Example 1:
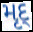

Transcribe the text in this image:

મૃદ્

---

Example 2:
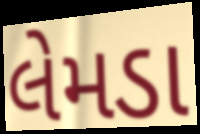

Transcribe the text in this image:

લેમડા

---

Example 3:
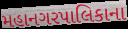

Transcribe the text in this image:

મહાનગરપાલિકાના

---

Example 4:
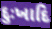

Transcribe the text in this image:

દુઃખાદિ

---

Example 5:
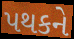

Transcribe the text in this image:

પથકને